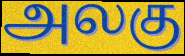
அலகு